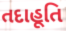
તદાહૂતિ